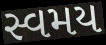
સ્વમય